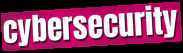
cybersecurity